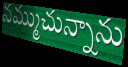
నమ్ముచున్నాను